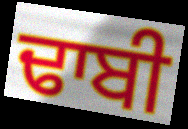
ਢਾਬੀ